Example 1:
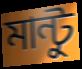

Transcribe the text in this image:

মান্টু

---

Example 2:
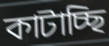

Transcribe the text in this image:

কাটাচ্ছি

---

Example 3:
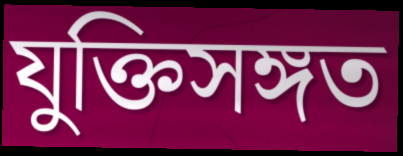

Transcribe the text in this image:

যুক্তিসঙ্গত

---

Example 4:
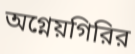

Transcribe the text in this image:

অগ্নেয়গিরির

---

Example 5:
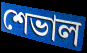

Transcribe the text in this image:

শেভাল